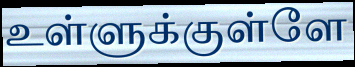
உள்ளுக்குள்ளே